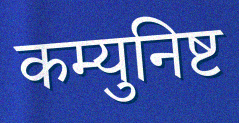
कम्युनिष्ट